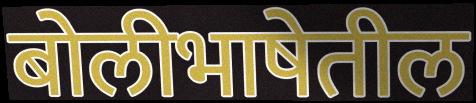
बोलीभाषेतील